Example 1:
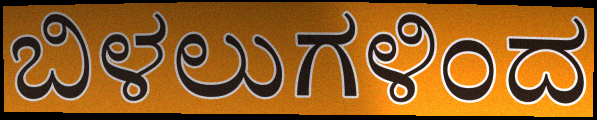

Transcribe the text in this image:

ಬಿಳಲುಗಳಿಂದ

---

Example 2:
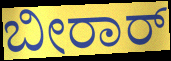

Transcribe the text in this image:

ಬೀರಾರ್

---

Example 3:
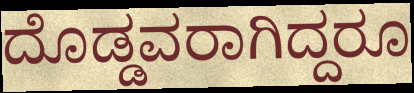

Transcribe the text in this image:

ದೊಡ್ಡವರಾಗಿದ್ದರೂ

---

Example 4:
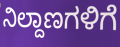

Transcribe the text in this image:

ನಿಲ್ದಾಣಗಳಿಗೆ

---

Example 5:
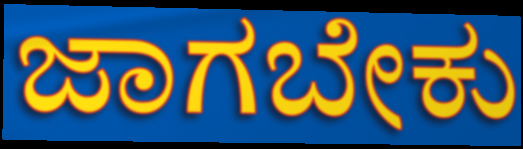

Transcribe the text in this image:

ಜಾಗಬೇಕು